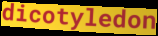
dicotyledon